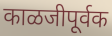
काळजीपूर्वक